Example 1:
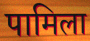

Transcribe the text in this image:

पामिला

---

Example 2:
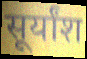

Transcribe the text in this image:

सूर्यांश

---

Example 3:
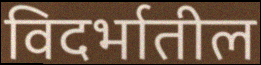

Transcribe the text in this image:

विदर्भातील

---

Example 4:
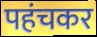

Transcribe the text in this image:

पहंचकर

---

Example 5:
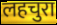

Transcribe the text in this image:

लहचुरा